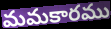
మమకారము